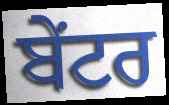
ਬੇਂਟਰ